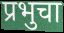
प्रभुचा